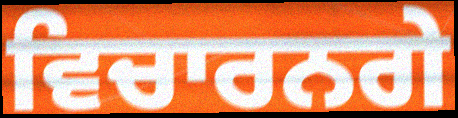
ਵਿਚਾਰਨਗੇ